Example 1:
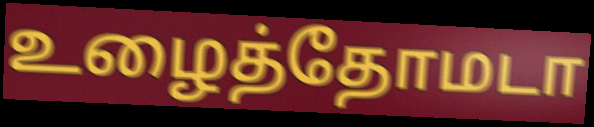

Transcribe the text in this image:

உழைத்தோமடா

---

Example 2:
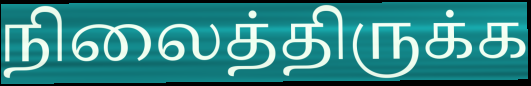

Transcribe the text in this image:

நிலைத்திருக்க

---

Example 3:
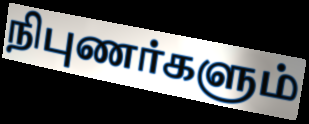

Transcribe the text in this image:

நிபுணர்களும்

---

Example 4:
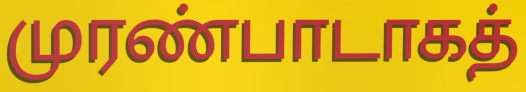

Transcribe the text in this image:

முரண்பாடாகத்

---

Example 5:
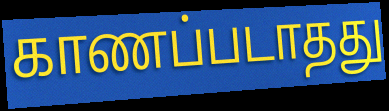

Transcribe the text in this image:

காணப்படாதது